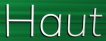
Haut